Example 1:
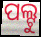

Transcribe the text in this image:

ପଲ୍ଟୁ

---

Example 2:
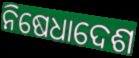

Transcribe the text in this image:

ନିଷେଧାଦେଶ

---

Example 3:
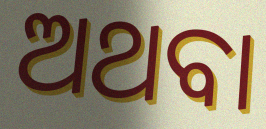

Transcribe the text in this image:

ଅଥବା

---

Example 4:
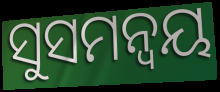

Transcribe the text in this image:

ସୁସମନ୍ଵୟ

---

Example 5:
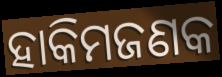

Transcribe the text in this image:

ହାକିମଜଣକ